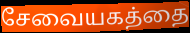
சேவையகத்தை